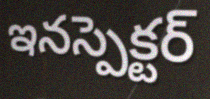
ఇనస్పెక్టర్